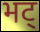
भट्